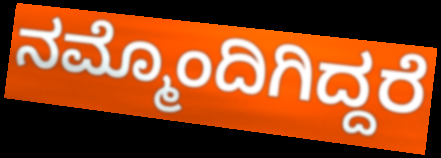
ನಮ್ಮೊಂದಿಗಿದ್ದರೆ